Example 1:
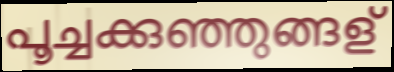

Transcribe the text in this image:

പൂച്ചക്കുഞ്ഞുങ്ങള്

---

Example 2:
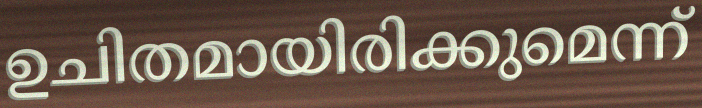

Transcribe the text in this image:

ഉചിതമായിരിക്കുമെന്ന്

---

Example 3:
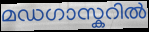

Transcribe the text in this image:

മഡഗാസ്കറിൽ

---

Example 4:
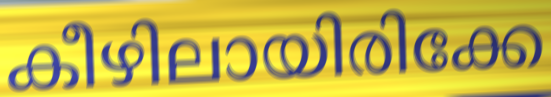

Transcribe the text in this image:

കീഴിലായിരിക്കേ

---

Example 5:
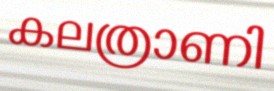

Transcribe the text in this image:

കലത്രാണി